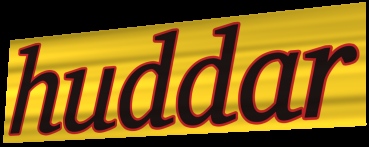
huddar